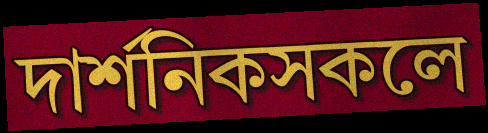
দাৰ্শনিকসকলে